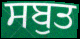
ਸਬੁਤ